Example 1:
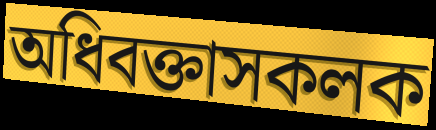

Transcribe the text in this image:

অধিবক্তাসকলক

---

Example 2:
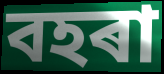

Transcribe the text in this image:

বহৰা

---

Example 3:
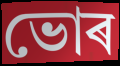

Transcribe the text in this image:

ভোৰ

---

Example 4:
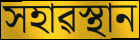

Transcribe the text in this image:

সহাৱস্থান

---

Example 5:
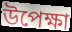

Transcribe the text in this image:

উপেক্ষা